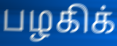
பழகிக்